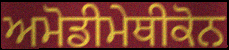
ਅਮੋਡੀਮੇਥੀਕੋਨ